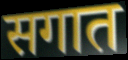
सगात